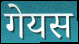
गेयस